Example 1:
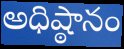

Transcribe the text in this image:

అధిష్ఠానం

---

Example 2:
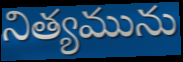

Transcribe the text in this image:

నిత్యమును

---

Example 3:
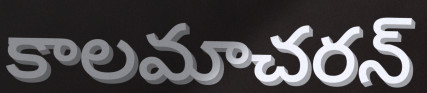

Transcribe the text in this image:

కాలమాచరన్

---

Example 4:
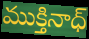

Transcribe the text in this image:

ముక్తినాధ్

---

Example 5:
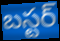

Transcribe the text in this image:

బస్టర్